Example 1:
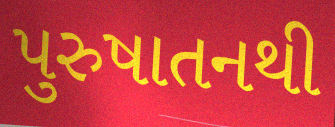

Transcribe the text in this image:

પુરુષાતનથી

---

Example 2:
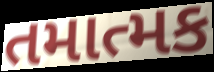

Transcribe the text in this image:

તમાત્મક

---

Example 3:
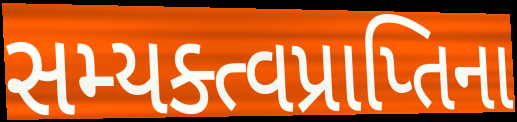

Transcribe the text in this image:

સમ્યક્ત્વપ્રાપ્તિના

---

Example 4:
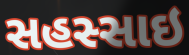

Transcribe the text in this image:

સહસ્સાઇ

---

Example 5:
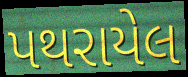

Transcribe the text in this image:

પથરાયેલ